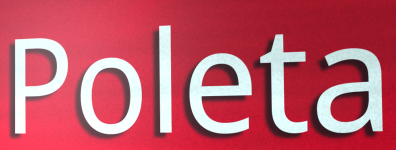
Poleta